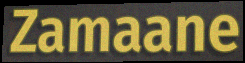
Zamaane